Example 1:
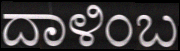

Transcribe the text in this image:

ದಾಳಿಂಬ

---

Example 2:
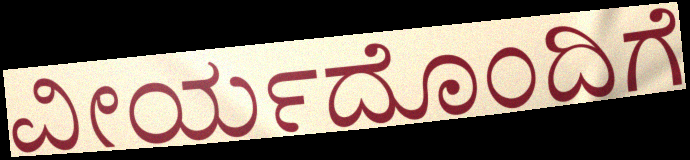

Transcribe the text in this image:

ವೀರ್ಯದೊಂದಿಗೆ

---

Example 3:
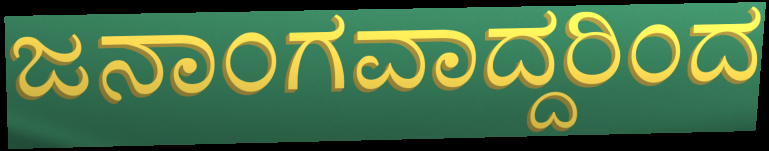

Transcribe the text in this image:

ಜನಾಂಗವಾದ್ದರಿಂದ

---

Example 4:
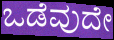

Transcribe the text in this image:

ಒಡೆವುದೇ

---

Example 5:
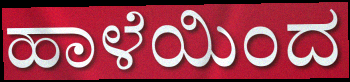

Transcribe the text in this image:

ಹಾಳೆಯಿಂದ